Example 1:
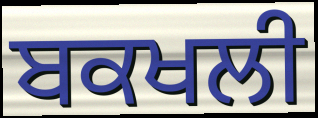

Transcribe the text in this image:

ਬਕਖਲੀ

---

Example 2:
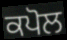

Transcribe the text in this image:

ਕਪੋਲ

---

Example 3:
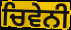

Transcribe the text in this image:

ਚਿਵੇਨੀ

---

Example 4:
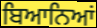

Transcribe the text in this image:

ਬਿਆਨਿਆਂ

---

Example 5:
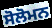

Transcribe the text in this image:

ਸੋਲੋਮਨ